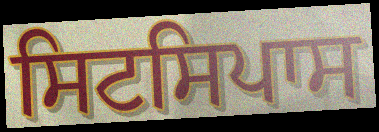
ਸਿਟਸਿਪਾਸ